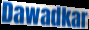
Dawadkar